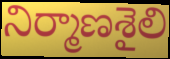
నిర్మాణశైలి